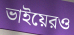
ভাইয়েরও